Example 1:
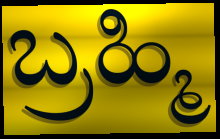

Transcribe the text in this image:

ಬ್ರಹ್ಮಿ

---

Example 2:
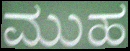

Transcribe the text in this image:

ಮುಹ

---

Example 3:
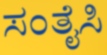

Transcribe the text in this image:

ಸಂತೈಸಿ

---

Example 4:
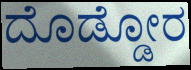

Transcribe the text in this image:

ದೊಡ್ಡೋರ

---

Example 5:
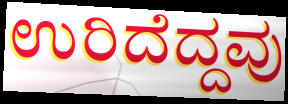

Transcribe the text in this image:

ಉರಿದೆದ್ದವು